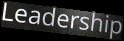
Leadership